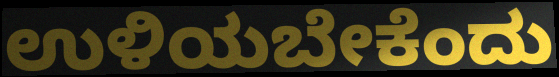
ಉಳಿಯಬೇಕೆಂದು